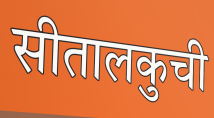
सीतालकुची